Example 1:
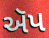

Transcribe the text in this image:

ઍપ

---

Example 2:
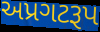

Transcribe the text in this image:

અપ્રગટરૂપ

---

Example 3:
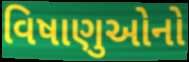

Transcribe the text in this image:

વિષાણુઓનો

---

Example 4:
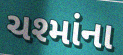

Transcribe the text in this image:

ચશ્માંના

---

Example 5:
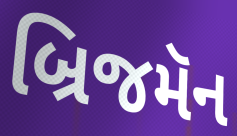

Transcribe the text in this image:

બ્રિજમૅન